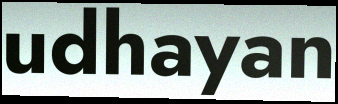
udhayan